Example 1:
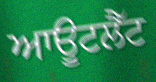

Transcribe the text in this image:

ਆਊਟਲੈੱਟ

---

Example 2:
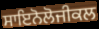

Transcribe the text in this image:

ਸਾਇਨੋਲੋਜੀਕਲ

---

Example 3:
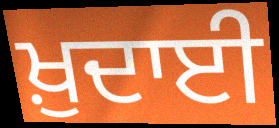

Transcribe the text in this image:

ਖ਼ੁਦਾਈ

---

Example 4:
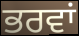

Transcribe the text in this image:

ਭਰਵਾਂ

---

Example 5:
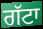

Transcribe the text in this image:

ਗੱਟਾ